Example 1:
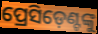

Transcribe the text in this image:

ପ୍ରେସିଡ଼େଣ୍ଟଙ୍କୁ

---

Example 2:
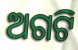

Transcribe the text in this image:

ଅଗଟି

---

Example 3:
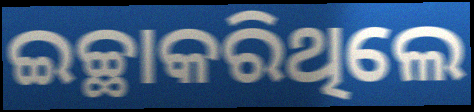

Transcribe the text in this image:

ଇଚ୍ଛାକରିଥିଲେ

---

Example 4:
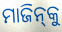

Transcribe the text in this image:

ମାଜିନ୍‌କୁ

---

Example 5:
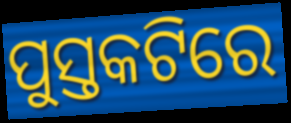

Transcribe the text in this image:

ପୁସ୍ତକଟିରେ